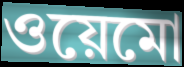
ওয়েমো